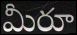
మీరూ